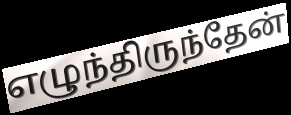
எழுந்திருந்தேன்